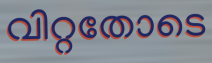
വിറ്റതോടെ